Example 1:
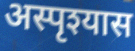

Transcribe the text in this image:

अस्पृश्यास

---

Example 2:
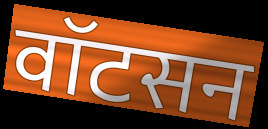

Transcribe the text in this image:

वॉटसन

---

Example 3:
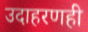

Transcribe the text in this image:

उदाहरणही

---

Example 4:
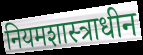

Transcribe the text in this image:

नियमशास्त्राधीन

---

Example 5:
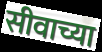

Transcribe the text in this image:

सीवाच्या